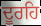
ਦੂਰਹਿ